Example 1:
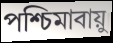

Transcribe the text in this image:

পশ্চিমাবায়ু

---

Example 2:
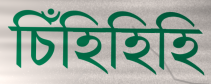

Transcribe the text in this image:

চিঁহিহিহি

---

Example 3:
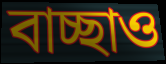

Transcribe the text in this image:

বাচ্ছাও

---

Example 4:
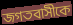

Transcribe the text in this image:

জগতবাসীকে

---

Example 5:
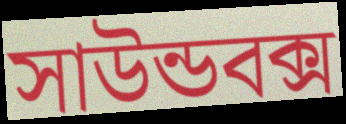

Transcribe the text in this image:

সাউন্ডবক্স